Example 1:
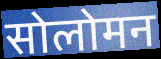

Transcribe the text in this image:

सोलोमन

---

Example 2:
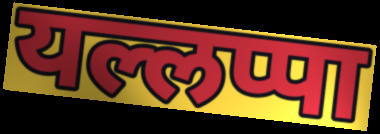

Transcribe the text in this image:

यल्लप्पा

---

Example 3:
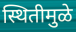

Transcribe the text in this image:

स्थितीमुळे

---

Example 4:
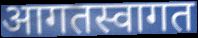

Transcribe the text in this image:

आगतस्वागत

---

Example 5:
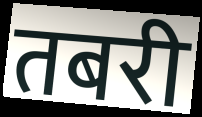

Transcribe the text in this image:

तबरी